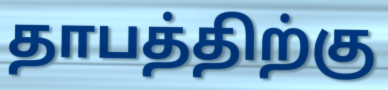
தாபத்திற்கு